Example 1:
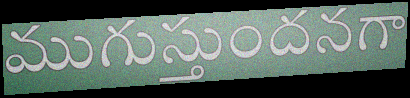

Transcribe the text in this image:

ముగుస్తుందనగా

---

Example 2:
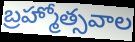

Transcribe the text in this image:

బ్రహ్మోత్సవాల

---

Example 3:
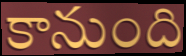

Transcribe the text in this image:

కానుంది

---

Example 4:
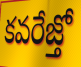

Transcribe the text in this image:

కవరేజ్తో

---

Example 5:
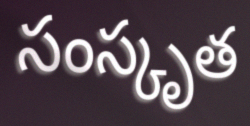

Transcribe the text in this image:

సంస్కృత